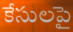
కేసులపై